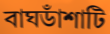
বাঘডাঁশাটি